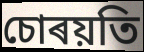
চোৰয়তি